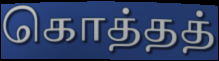
கொத்தத்